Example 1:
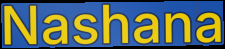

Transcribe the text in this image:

Nashana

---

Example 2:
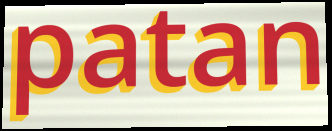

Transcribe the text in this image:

patan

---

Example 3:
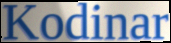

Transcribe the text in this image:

Kodinar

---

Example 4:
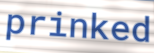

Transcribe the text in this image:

prinked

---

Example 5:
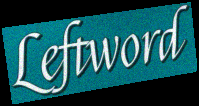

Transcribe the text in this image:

Leftword